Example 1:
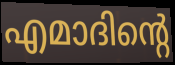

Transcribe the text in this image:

എമാദിന്റെ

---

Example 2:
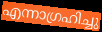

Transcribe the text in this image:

എന്നാഗ്രഹിച്ചു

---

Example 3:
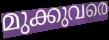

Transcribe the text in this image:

മുക്കുവരെ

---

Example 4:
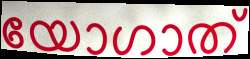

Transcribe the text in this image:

യോഗാത്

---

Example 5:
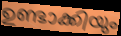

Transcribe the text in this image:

ഉണ്ടാക്കിയും